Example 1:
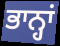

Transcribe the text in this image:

ਭਾਨ੍ਹਾਂ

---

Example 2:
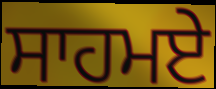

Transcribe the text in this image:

ਸਾਹਮਏ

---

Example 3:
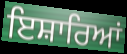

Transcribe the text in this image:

ਇਸ਼ਾਰਿਆਂ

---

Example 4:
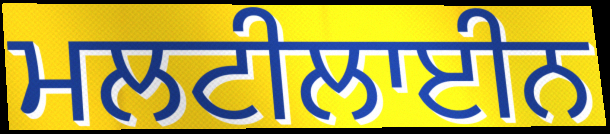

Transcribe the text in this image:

ਮਲਟੀਲਾਈਨ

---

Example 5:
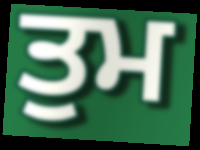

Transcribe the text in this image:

ਤੁਮ